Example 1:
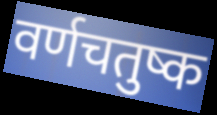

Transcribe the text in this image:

वर्णचतुष्क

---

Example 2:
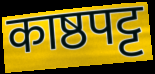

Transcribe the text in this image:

काष्ठपट्ट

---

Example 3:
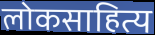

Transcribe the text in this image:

लोकसाहित्य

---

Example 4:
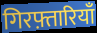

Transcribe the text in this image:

गिरफ़्तारियाँ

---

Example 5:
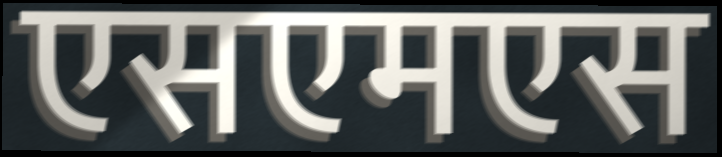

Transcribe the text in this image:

एसएमएस